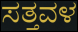
ಸತ್ತವಳ